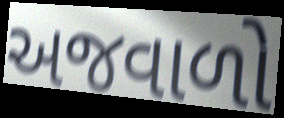
અજવાળો